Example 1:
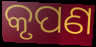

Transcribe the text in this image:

କୃପଣ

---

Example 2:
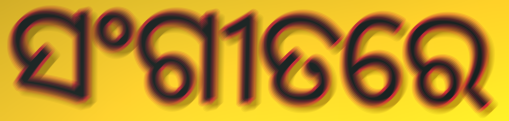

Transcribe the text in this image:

ସଂଗୀତରେ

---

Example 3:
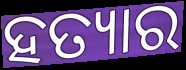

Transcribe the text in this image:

ହତ୍ୟାର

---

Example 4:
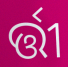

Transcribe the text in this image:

ର୍ତ୍ତୀ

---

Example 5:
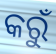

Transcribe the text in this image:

କରୁଁ